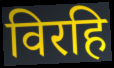
विरहि